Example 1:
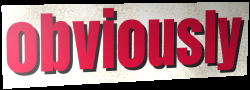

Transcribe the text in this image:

obviously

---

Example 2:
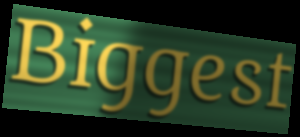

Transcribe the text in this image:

Biggest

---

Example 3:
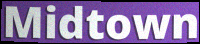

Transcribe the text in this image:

Midtown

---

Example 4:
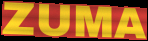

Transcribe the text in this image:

ZUMA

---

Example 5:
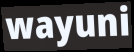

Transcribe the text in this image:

wayuni